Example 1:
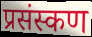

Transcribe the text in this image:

प्रसंस्कण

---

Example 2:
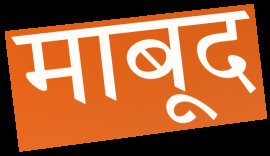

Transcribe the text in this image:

माबूद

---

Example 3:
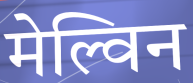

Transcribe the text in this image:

मेल्विन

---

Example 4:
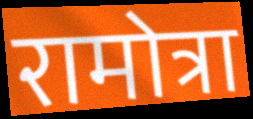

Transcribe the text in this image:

रामोत्रा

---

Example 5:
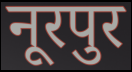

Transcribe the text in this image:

नूरपुर